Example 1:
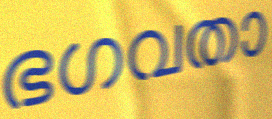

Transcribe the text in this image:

ഭഗവതാ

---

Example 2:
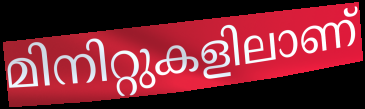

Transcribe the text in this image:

മിനിറ്റുകളിലാണ്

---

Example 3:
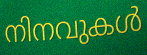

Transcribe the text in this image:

നിനവുകൾ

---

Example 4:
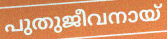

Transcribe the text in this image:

പുതുജീവനായ്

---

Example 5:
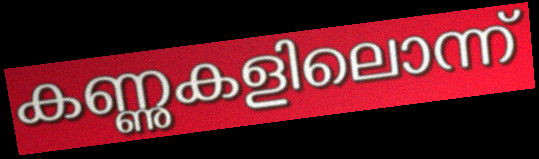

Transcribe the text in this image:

കണ്ണുകളിലൊന്ന്